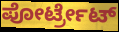
ಪೋರ್ಟ್ರೇಟ್